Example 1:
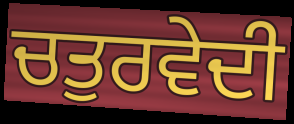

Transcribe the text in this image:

ਚਤੁਰਵੇਦੀ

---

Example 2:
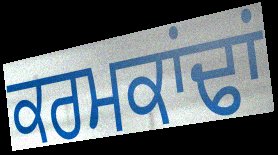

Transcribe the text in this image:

ਕਰਮਕਾਂਢਾਂ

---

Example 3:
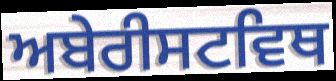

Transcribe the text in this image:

ਅਬੇਰੀਸਟਵਿਥ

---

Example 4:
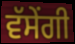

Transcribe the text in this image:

ਵੱਸੇਂਗੀ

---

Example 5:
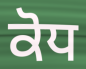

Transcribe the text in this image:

ਕੋਧ